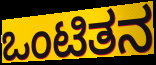
ಒಂಟಿತನ